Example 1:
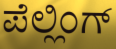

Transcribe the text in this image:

ಪೆಲ್ಲಿಂಗ್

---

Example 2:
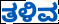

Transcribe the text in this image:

ತಳಿವ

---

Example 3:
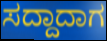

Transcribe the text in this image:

ಸದ್ದಾದಾಗ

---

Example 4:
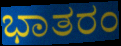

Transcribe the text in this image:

ಭಾತರಂ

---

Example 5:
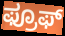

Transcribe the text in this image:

ಫ್ರೂಫ್